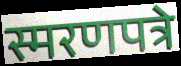
स्मरणपत्रे